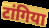
टांगिया